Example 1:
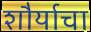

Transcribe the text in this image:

शौर्याचा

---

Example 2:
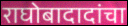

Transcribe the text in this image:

राघोबादादांचा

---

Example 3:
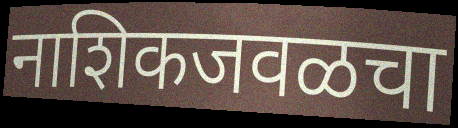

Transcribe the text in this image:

नाशिकजवळचा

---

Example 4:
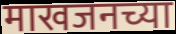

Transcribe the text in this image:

माखजनच्या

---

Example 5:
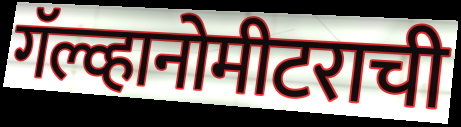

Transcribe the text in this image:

गॅल्व्हानोमीटराची